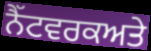
ਨੈੱਟਵਰਕਅਤੇ